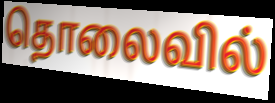
தொலைவில்